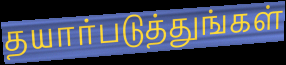
தயார்படுத்துங்கள்